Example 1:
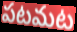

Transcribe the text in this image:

పటమట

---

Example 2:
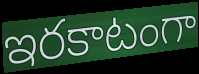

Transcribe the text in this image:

ఇరకాటంగా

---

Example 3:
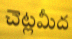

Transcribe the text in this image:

చెట్లమీద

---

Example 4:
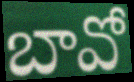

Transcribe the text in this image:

బావో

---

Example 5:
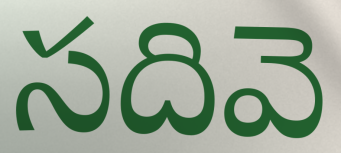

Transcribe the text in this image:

సదివె